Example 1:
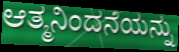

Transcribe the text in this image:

ಆತ್ಮನಿಂದನೆಯನ್ನು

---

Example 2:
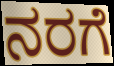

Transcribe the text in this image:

ನರಗೆ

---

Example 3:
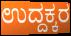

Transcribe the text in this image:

ಉದ್ದಕ್ಕರ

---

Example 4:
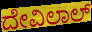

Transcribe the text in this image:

ದೇವಿಲಾಲ್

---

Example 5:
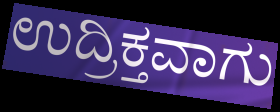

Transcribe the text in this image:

ಉದ್ರಿಕ್ತವಾಗು